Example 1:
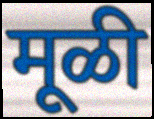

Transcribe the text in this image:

मूळी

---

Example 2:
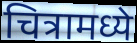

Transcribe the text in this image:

चित्रामध्ये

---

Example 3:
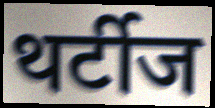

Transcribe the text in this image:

थर्टीज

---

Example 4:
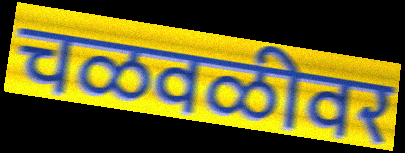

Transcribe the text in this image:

चळवळीवर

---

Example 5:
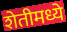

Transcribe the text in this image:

शेतीमध्ये